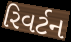
રિવર્ટન